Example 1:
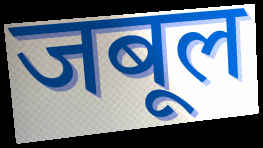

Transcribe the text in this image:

जबूल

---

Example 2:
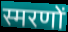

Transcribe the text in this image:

स्मरणों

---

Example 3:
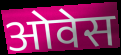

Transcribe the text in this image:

ओवेस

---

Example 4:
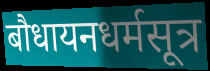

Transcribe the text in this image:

बौधायनधर्मसूत्र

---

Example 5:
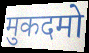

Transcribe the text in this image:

मुकदमो